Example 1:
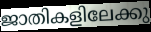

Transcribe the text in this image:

ജാതികളിലേക്കു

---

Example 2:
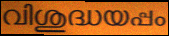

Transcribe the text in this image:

വിശുദ്ധയപ്പം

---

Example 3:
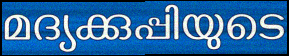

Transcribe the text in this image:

മദ്യക്കുപ്പിയുടെ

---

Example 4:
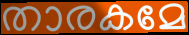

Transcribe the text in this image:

താരകമേ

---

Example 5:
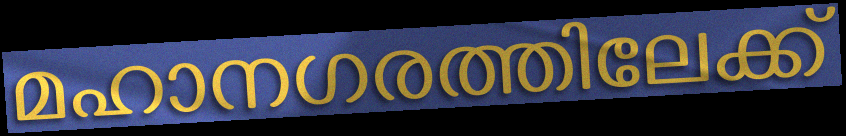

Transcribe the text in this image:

മഹാനഗരത്തിലേക്ക്